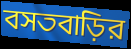
বসতবাড়ির